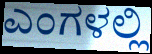
ಎಂಗಳಲ್ಲಿ